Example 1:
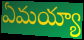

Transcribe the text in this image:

ఏమయ్యా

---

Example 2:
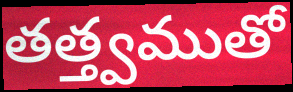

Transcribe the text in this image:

తత్త్వముతో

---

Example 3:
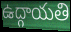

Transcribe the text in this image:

ఉద్గాయతి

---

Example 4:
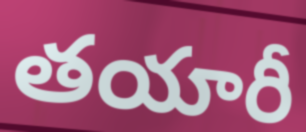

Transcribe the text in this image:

తయారీ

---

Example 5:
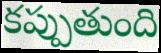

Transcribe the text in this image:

కప్పుతుంది